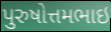
પુરુષોત્તમભાઇ